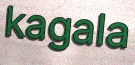
kagala